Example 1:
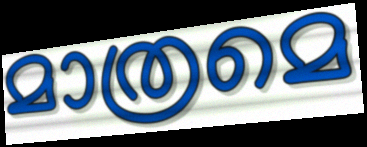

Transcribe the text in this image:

മാത്രമെ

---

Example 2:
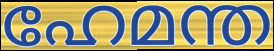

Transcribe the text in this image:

ഹേമന്ത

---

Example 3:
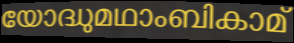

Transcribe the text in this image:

യോദ്ധുമഥാംബികാമ്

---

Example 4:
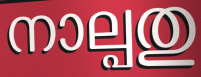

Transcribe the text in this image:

നാല്പതു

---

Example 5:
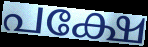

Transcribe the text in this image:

പക്ഷേ